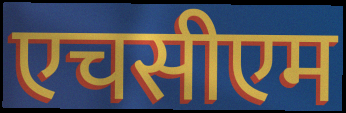
एचसीएम